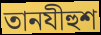
তানযীহুশ